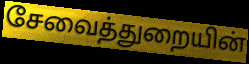
சேவைத்துறையின்